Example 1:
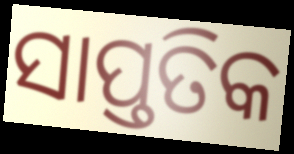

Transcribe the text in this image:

ସାପ୍ତତିକ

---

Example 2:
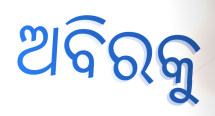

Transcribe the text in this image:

ଅବିରକୁ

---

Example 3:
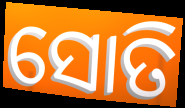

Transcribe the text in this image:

ସୋତି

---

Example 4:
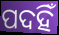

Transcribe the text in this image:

ପଦହିଁ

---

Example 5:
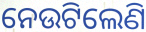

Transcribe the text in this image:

ନେଉଟିଲେଣି